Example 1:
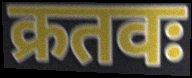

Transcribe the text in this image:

क्रतवः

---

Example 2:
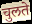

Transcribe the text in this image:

चुलते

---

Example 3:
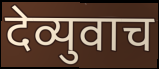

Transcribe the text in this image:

देव्युवाच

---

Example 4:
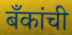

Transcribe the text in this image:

बँकांची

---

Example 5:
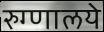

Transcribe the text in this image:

रुग्णालये